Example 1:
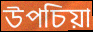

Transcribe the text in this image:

উপচিয়া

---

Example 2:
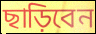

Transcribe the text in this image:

ছাড়িবেন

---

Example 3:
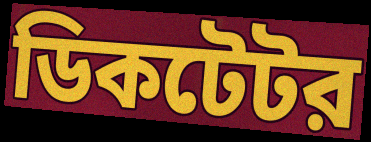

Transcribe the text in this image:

ডিকটেটর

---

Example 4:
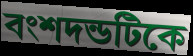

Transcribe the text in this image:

বংশদন্ডটিকে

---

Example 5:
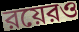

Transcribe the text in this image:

রয়েরও